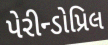
પેરીન્ડોપ્રિલ